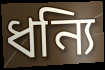
ধন্যি